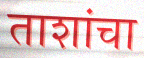
ताशांचा